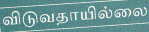
விடுவதாயில்லை